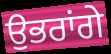
ਉਭਰਾਂਗੇ